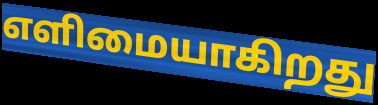
எளிமையாகிறது